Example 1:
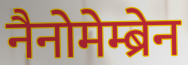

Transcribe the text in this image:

नैनोमेम्ब्रेन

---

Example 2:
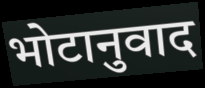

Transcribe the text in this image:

भोटानुवाद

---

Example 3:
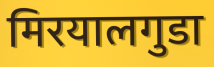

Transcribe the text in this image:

मिरयालगुडा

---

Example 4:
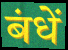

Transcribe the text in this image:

बंधें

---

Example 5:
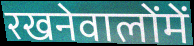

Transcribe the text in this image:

रखनेवालोंमें